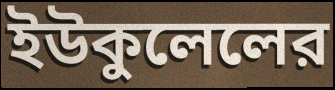
ইউকুলেলের